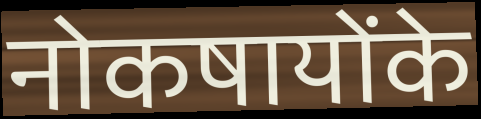
नोकषायोंके